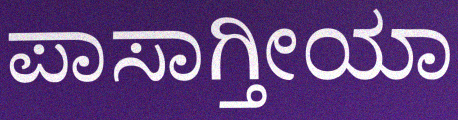
ಪಾಸಾಗ್ತೀಯಾ